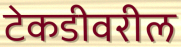
टेकडीवरील